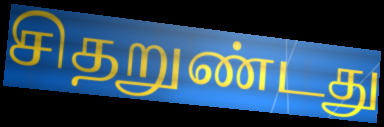
சிதறுண்டது